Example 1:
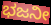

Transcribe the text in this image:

ಭಜನೀ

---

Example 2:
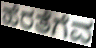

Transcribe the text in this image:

ಹೆರತೆಗೆವ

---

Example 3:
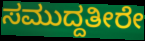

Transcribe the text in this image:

ಸಮುದ್ದತೀರೇ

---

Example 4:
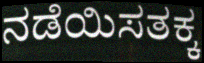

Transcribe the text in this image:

ನಡೆಯಿಸತಕ್ಕ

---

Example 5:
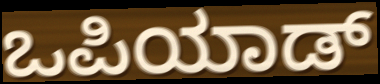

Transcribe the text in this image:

ಒಪಿಯಾಡ್